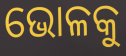
ଭୋଳକୁ